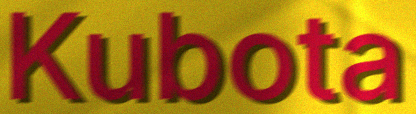
Kubota